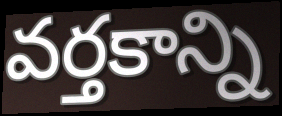
వర్తకాన్ని